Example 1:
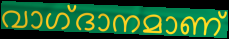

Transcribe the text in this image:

വാഗ്‌ദാനമാണ്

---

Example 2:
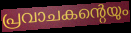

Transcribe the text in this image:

പ്രവാചകന്റെയും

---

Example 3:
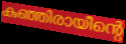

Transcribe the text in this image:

കുഞ്ഞിരായീന്റെ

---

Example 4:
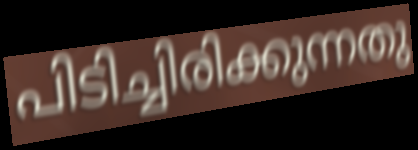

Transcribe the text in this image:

പിടിച്ചിരിക്കുന്നതു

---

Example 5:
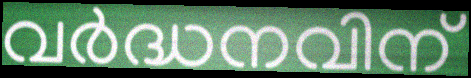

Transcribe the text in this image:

വർദ്ധനവിന്